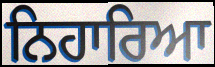
ਨਿਹਾਰਿਆ